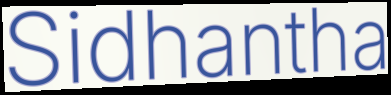
Sidhantha